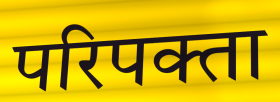
परिपक्ता